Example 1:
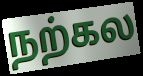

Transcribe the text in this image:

நற்கல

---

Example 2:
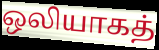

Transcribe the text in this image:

ஒலியாகத்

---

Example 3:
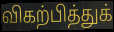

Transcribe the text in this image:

விகற்பித்துக்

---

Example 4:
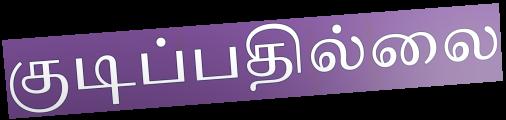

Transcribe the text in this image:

குடிப்பதில்லை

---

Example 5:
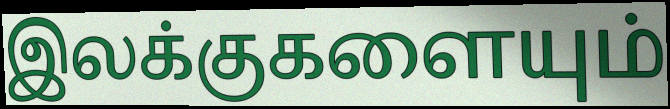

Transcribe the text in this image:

இலக்குகளையும்